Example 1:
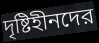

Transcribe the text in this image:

দৃষ্টিহীনদের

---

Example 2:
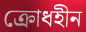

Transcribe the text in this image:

ক্রোধহীন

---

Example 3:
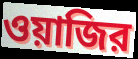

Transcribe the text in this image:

ওয়াজির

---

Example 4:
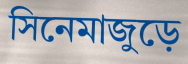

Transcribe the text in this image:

সিনেমাজুড়ে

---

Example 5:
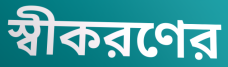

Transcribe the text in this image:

স্বীকরণের